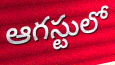
ఆగస్టులో